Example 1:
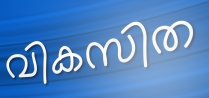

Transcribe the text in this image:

വികസിത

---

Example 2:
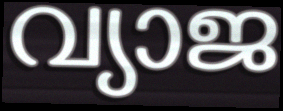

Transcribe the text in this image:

വ്യാജ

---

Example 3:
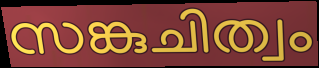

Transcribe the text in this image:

സങ്കുചിത്വം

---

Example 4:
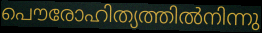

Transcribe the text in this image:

പൌരോഹിത്യത്തിൽനിന്നു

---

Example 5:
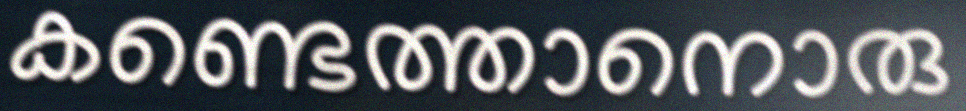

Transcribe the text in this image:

കണ്ടെത്താനൊരു